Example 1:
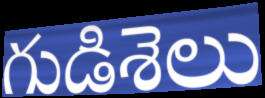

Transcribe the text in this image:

గుడిశెలు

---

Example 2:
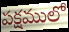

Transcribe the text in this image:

పక్షములో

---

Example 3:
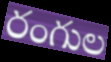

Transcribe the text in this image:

రంగుల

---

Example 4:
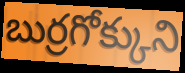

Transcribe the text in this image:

బుర్రగోక్కుని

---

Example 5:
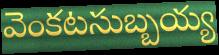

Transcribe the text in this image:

వెంకటసుబ్బయ్య